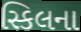
સ્કિલના